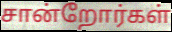
சான்றோர்கள்